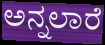
ಅನ್ನಲಾರೆ